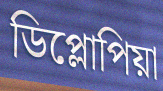
ডিপ্লোপিয়া